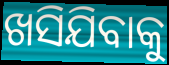
ଖସିଯିବାକୁ